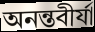
অনন্তবীর্যা